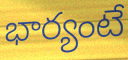
భార్యంటే